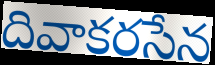
దివాకరసేన